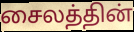
சைலத்தின்